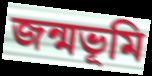
জন্মভূমি